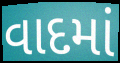
વાદમાં